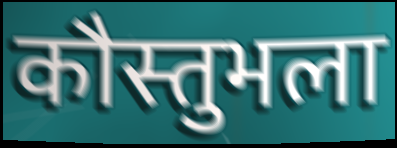
कौस्तुभला